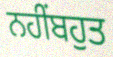
ਨਹੀਂਬਹੁਤ